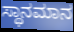
ಸ್ಥಾನಮಾನ